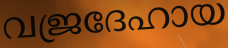
വജ്രദേഹായ